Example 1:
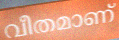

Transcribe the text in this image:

വീതമാണ്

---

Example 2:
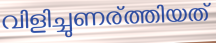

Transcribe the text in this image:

വിളിച്ചുണര്ത്തിയത്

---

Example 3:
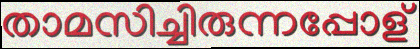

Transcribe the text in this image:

താമസിച്ചിരുന്നപ്പോള്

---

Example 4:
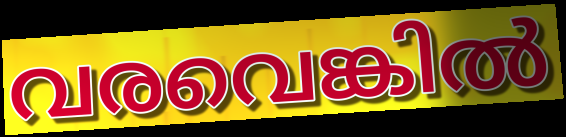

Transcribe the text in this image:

വരവെങ്കിൽ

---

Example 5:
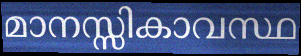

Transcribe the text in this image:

മാനസ്സികാവസ്ഥ